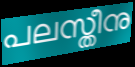
പലസ്തീനു